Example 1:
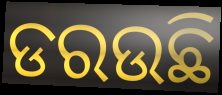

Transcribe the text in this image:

ଡରଉଛି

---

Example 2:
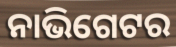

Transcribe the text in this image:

ନାଭିଗେଟର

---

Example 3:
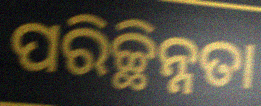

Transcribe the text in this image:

ପରିଚ୍ଛିନ୍ନତା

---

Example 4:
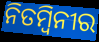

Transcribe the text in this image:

ନିତମ୍ବିନୀର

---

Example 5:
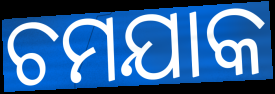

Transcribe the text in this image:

ଚମଯାକ